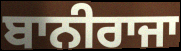
ਬਾਨੀਰਾਜਾ